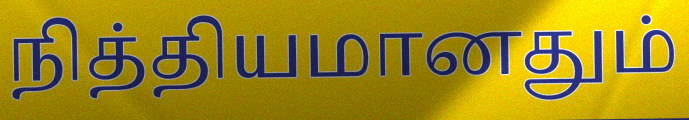
நித்தியமானதும்